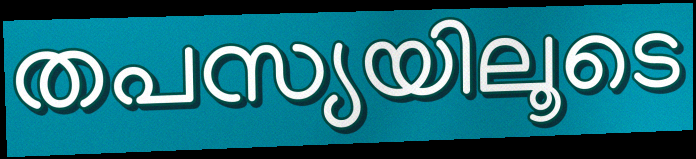
തപസ്യയിലൂടെ